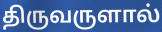
திருவருளால்